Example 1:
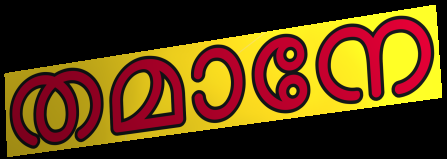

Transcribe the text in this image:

തമാനേ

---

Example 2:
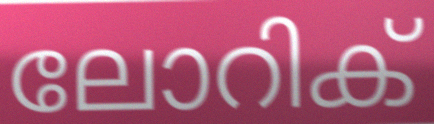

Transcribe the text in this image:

ലോറിക്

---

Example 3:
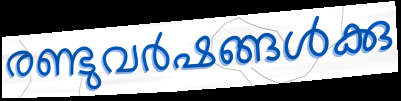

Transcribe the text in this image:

രണ്ടുവർഷങ്ങൾക്കു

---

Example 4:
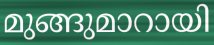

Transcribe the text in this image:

മുങ്ങുമാറായി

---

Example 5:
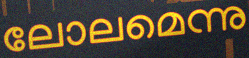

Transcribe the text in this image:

ലോലമെന്നു